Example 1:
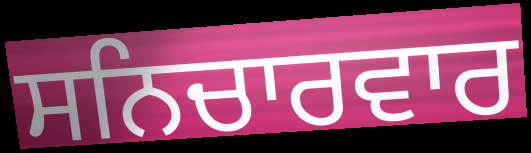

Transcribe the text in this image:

ਸਨਿਚਾਰਵਾਰ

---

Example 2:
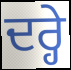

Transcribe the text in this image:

ਦਰ੍ਹੇ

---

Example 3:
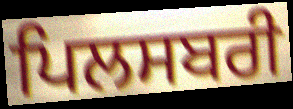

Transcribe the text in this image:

ਪਿਲਸਬਰੀ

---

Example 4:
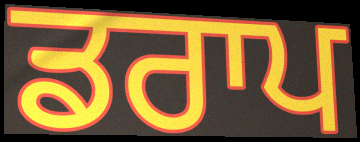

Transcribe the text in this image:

ਡਰਾਪ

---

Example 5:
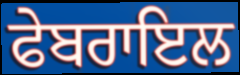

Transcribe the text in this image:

ਫੇਬਰਾਇਲ